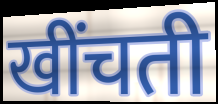
खींचती